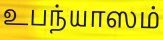
உபந்யாஸம்